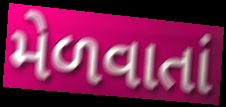
મેળવાતાં